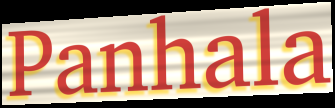
Panhala